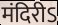
मंदिरीऽ